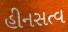
હીનસત્વ